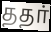
ததர்